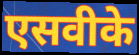
एसवीके